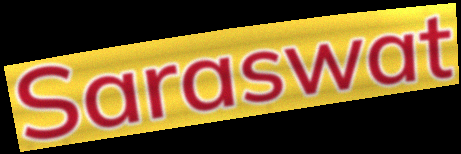
Saraswat